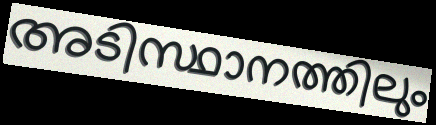
അടിസ്ഥാനത്തിലും